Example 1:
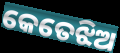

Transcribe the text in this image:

କେତେଝିଅ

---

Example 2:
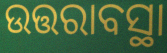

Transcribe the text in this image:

ଉତ୍ତରାବସ୍ଥା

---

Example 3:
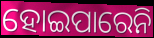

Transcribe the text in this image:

ହୋଇପାରେନି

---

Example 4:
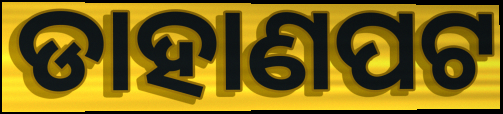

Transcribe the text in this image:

ଡାହାଣପଟ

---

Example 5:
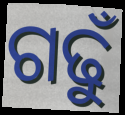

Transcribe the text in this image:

ଗଢୁଁ